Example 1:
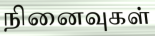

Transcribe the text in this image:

நினைவுகள்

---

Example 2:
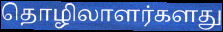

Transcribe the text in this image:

தொழிலாளர்களது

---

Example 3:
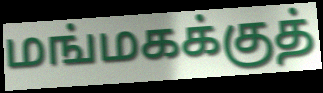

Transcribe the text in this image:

மங்மகக்குத்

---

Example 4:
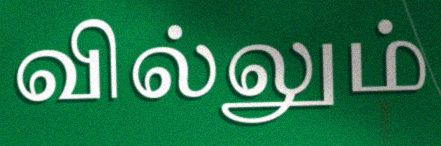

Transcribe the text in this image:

வில்லும்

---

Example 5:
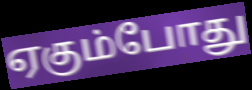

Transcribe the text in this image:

ஏகும்போது